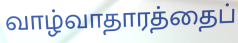
வாழ்வாதாரத்தைப்